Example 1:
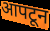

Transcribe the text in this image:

आपटून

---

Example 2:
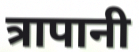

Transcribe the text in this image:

त्रापानी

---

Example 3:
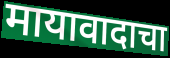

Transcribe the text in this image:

मायावादाचा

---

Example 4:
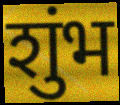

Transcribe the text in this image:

शुंभ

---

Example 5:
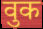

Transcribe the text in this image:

वुक